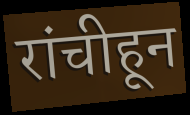
रांचीहून